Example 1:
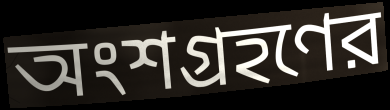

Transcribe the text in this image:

অংশগ্রহণের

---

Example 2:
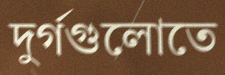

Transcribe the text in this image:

দুর্গগুলোতে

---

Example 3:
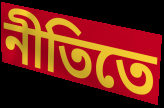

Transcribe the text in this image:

নীতিতে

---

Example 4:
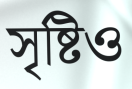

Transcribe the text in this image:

সৃষ্টিও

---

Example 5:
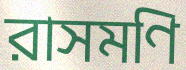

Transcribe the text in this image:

রাসমণি